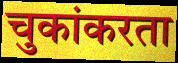
चुकांकरता